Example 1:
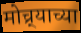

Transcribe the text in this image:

मोच्र्याच्या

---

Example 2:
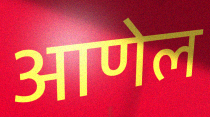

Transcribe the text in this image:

आणेल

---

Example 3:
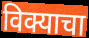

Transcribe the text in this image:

विक्याचा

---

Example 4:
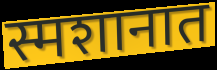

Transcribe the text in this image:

स्मशानात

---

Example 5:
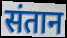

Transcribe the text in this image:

संतान